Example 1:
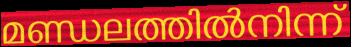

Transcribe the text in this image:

മണ്ഡലത്തിൽനിന്ന്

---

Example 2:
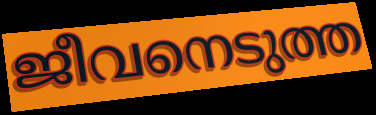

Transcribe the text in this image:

ജീവനെടുത്ത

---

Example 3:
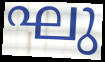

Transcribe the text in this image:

ഘു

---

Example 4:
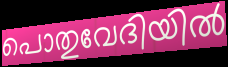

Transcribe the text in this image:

പൊതുവേദിയിൽ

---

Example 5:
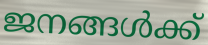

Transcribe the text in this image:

ജനങ്ങൾക്ക്